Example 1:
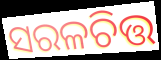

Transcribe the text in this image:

ସରଳଚିତ୍ତ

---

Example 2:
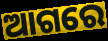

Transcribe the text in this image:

ଆଗରେ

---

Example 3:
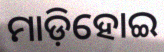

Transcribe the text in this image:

ମାଡ଼ିହୋଇ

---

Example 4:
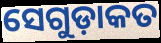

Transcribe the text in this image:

ସେଗୁଡ଼ାକତ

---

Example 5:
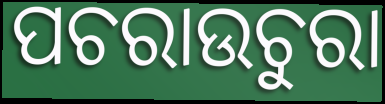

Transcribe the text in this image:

ପଚରାଉଚୁରା